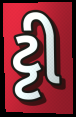
ટ્ટી